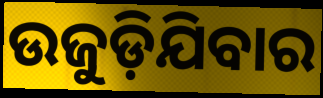
ଉଜୁଡ଼ିଯିବାର